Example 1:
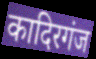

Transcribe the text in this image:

कादिरगंज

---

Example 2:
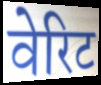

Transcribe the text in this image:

वेरिट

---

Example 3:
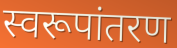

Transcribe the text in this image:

स्वरूपांतरण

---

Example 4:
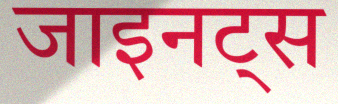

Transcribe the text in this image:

जाइनट्स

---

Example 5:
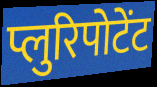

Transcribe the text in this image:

प्लुरिपोटेंट